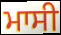
ਮਾਸੀ